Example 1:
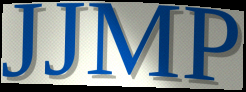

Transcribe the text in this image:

JJMP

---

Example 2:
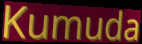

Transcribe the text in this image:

Kumuda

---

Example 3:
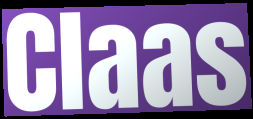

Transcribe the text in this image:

Claas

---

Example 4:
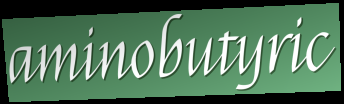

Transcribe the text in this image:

aminobutyric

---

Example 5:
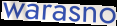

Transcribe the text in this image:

warasno